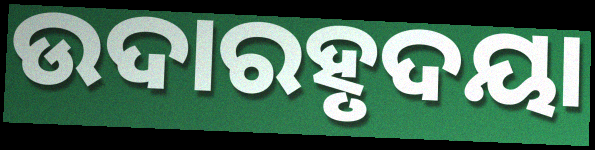
ଉଦାରହୃଦୟା